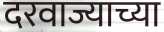
दरवाज्याच्या